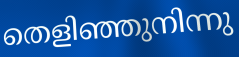
തെളിഞ്ഞുനിന്നു